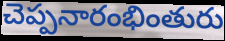
చెప్పనారంభింతురు